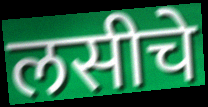
लसीचे